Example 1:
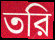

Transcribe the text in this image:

তরি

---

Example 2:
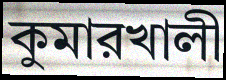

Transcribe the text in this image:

কুমারখালী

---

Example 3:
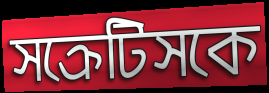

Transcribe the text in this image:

সক্রেটিসকে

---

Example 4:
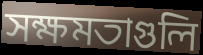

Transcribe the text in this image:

সক্ষমতাগুলি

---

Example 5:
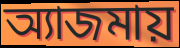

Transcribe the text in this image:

অ্যাজমায়